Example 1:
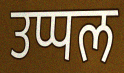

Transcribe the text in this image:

उप्पल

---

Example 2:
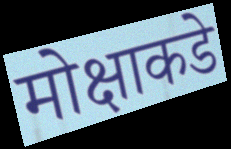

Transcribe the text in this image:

मोक्षाकडे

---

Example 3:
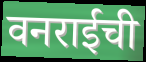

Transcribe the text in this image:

वनराईची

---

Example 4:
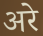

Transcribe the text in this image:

अरे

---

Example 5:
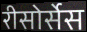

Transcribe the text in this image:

रीसोर्सेस